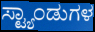
ಸ್ಟ್ಯಾಂಡುಗಳ